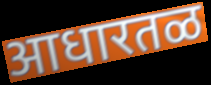
आधारतळ